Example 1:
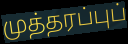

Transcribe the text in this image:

முத்தரப்புப்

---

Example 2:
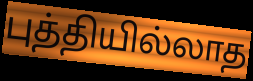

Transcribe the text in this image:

புத்தியில்லாத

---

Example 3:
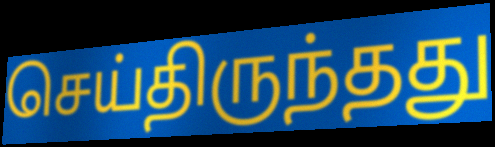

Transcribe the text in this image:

செய்திருந்தது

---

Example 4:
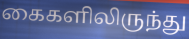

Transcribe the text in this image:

கைகளிலிருந்து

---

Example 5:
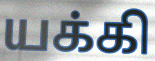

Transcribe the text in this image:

யக்கி